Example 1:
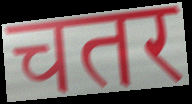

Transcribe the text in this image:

चतर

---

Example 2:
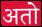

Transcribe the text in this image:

अतो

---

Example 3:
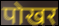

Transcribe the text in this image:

पोखर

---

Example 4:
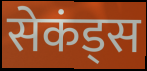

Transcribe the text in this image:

सेकंड्स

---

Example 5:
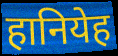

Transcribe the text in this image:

हानियेह